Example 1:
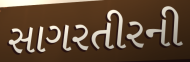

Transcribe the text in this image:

સાગરતીરની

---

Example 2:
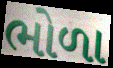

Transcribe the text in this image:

ભોળા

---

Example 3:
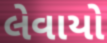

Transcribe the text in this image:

લેવાયો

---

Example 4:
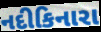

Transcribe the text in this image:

નદીકિનારા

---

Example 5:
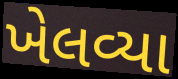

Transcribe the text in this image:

ખેલવ્યા